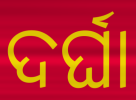
ଦର୍ଘା